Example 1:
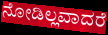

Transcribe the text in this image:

ನೋಡಿಲ್ಲವಾದರೆ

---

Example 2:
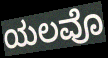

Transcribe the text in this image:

ಯಲವೊ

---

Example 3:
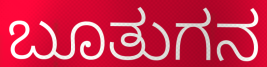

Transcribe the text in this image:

ಬೂತುಗನ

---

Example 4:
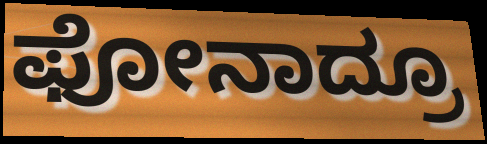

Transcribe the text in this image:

ಫೋನಾದ್ರೂ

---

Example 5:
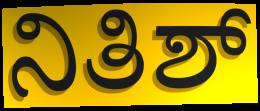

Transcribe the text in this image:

ನಿತಿಶ್